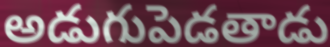
అడుగుపెడతాడు